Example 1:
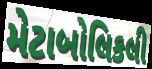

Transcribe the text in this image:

મેટાબોલિકલી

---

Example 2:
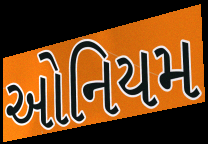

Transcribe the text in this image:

ઓનિયમ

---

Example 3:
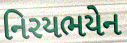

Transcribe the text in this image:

નિરયભયેન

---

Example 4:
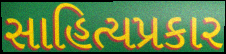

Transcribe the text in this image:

સાહિત્યપ્રકાર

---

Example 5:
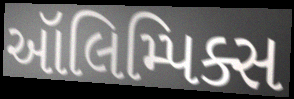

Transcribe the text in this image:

ઑલિમ્પિક્સ